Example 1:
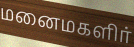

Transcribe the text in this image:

மனைமகளிர்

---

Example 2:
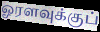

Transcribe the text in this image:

ஓரளவுக்குப்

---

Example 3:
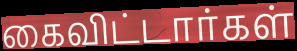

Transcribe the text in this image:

கைவிட்டார்கள்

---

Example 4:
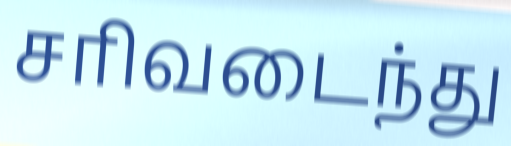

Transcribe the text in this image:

சரிவடைந்து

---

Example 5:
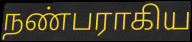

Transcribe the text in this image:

நண்பராகிய